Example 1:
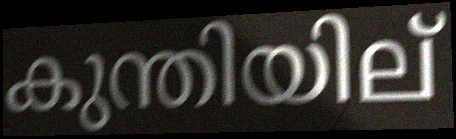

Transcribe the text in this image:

കുന്തിയില്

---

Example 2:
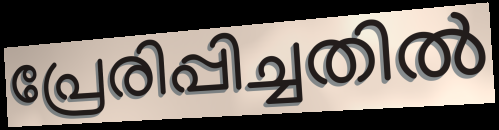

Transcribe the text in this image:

പ്രേരിപ്പിച്ചതിൽ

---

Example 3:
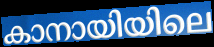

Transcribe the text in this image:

കാനായിയിലെ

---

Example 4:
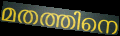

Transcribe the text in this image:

മതത്തിനെ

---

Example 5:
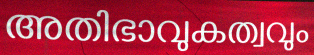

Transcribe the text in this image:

അതിഭാവുകത്വവും